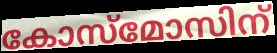
കോസ്മോസിന്